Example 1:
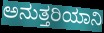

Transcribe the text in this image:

ಅನುತ್ತರಿಯಾನಿ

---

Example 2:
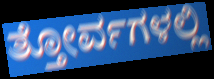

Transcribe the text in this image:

ತ್ತೋರ್ವಗಳಲ್ಲಿ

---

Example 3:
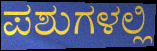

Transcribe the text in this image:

ಪಶುಗಳಲ್ಲಿ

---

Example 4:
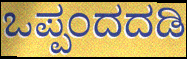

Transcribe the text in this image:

ಒಪ್ಪಂದದಡಿ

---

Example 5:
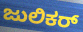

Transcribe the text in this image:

ಜುಲಿಕರ್